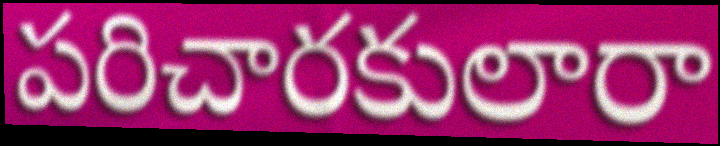
పరిచారకులారా